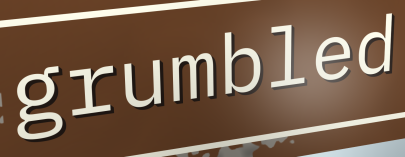
grumbled